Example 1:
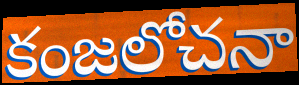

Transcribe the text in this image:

కంజలోచనా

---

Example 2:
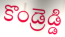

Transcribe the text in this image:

కొండ్రెడ్డి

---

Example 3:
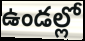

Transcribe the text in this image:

ఉండల్లో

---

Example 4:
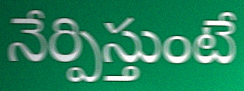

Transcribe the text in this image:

నేర్పిస్తుంటే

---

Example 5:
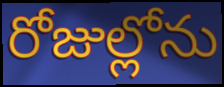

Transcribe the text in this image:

రోజుల్లోను